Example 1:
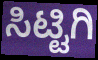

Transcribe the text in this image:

ಸಿಟ್ಟಿಗಿ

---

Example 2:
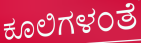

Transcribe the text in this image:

ಕೂಲಿಗಳಂತೆ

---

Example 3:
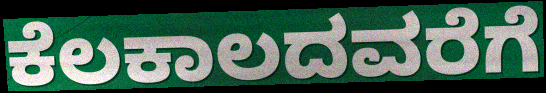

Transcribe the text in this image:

ಕೆಲಕಾಲದವರೆಗೆ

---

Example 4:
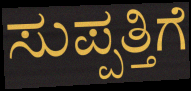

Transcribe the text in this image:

ಸುಪ್ಪತ್ತಿಗೆ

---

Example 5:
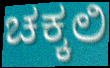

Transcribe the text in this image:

ಚಕ್ಕಲಿ